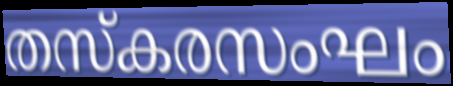
തസ്കരസംഘം